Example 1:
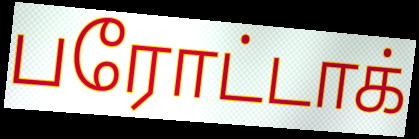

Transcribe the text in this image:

பரோட்டாக்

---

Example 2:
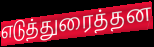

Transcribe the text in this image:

எடுத்துரைத்தன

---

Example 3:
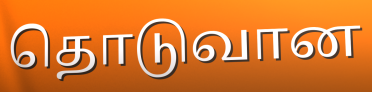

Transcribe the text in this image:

தொடுவான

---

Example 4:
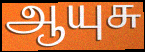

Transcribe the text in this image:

ஆயுசு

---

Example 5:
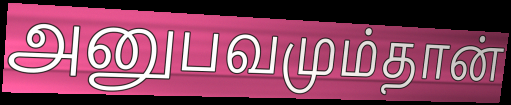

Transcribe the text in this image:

அனுபவமும்தான்